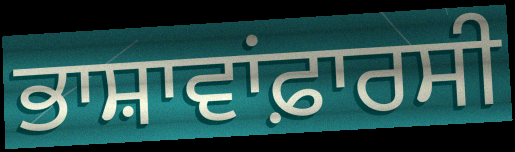
ਭਾਸ਼ਾਵਾਂਫ਼ਾਰਸੀ